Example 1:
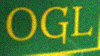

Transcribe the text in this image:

OGL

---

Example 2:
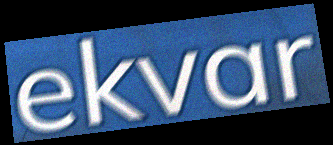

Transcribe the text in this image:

ekvar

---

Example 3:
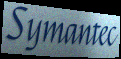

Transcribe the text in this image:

Symantec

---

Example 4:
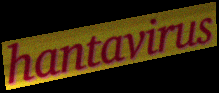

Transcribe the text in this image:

hantavirus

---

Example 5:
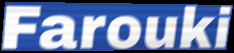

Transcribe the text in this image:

Farouki